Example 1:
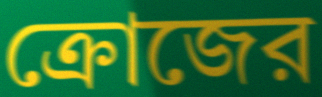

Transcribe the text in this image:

ক্রোজের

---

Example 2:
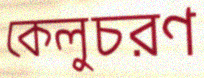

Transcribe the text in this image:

কেলুচরণ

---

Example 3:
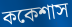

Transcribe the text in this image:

ককেশাস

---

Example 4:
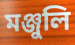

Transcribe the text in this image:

মঞ্জুলি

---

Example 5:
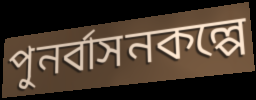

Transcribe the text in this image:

পুনর্বাসনকল্পে